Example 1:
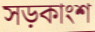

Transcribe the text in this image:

সড়কাংশ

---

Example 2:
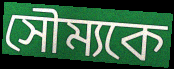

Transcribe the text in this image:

সৌম্যকে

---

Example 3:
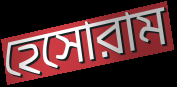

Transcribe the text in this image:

হেসোরাম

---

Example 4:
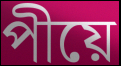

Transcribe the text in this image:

পীয়ে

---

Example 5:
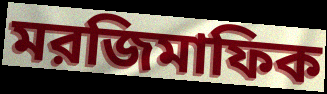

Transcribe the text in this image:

মরজিমাফিক